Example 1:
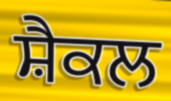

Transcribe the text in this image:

ਸ਼ੈਕਲ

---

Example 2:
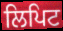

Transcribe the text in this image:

ਲਿਪਿਟ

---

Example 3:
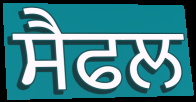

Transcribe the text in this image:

ਸੈਫਲ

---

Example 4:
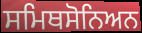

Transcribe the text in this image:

ਸਮਿਥਸੋਨਿਅਨ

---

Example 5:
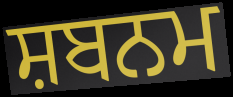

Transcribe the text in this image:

ਸ਼ਬਨਮ